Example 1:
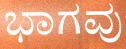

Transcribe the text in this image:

ಭಾಗವು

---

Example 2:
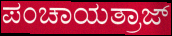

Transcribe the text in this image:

ಪಂಚಾಯತ್ರಾಜ್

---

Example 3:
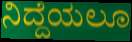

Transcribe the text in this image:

ನಿದ್ದೆಯಲೂ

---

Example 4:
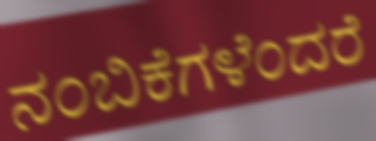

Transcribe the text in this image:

ನಂಬಿಕೆಗಳೆಂದರೆ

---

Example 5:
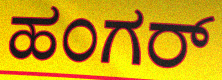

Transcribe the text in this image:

ಹಂಗರ್